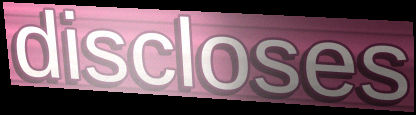
discloses